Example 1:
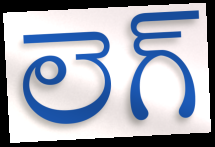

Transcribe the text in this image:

లెగ్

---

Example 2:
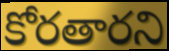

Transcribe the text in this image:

కోరతారని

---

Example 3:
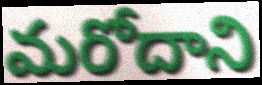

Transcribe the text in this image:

మరోదాని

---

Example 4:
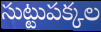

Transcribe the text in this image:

సుట్టుపక్కల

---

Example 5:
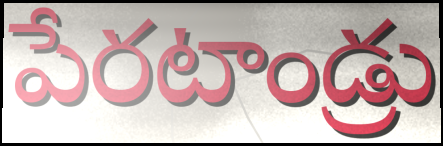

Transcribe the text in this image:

పేరటాండ్రు